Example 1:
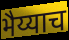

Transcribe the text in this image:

भैय्याच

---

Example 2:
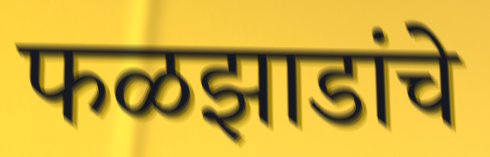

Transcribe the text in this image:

फळझाडांचे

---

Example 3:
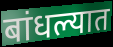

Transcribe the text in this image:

बांधल्यात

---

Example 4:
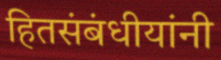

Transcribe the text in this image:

हितसंबंधीयांनी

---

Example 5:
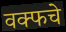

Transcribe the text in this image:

वक्फचे